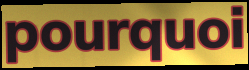
pourquoi